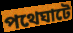
পথেঘাটে